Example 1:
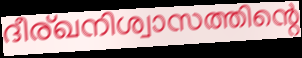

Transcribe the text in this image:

ദീര്ഖനിശ്വാസത്തിന്റെ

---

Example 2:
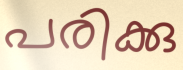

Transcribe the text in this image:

പരിക്കു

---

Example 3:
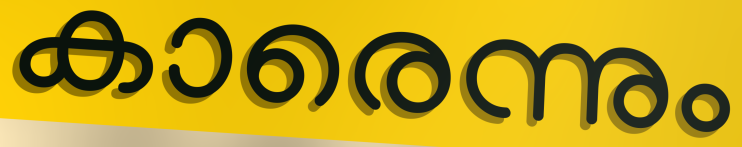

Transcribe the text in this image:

കാരെന്നും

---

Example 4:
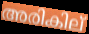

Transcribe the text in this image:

അരികില്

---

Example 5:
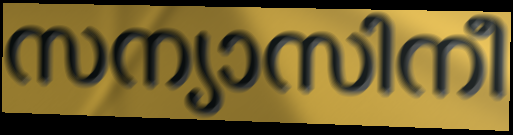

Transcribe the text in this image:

സന്യാസിനീ